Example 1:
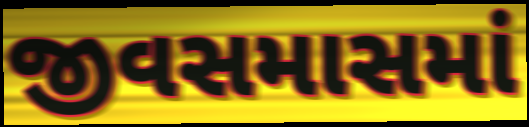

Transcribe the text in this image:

જીવસમાસમાં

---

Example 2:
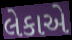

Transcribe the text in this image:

લેકાએ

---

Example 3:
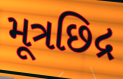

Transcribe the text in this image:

મૂત્રછિદ્ર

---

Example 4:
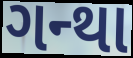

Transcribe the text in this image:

ગન્થા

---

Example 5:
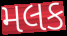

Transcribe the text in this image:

મલક